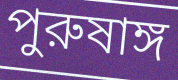
পুরুষাঙ্গ